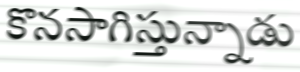
కొనసాగిస్తున్నాడు